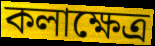
কলাক্ষেত্ৰ